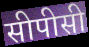
सीपीसी